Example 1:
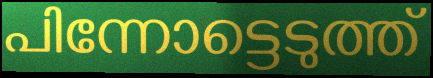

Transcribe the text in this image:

പിന്നോട്ടെടുത്ത്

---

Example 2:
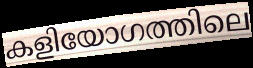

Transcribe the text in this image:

കളിയോഗത്തിലെ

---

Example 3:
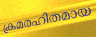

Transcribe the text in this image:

ക്രമരഹിതമായ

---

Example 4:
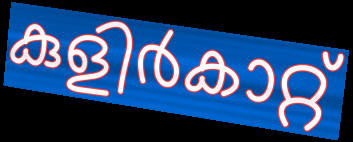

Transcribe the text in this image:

കുളിർകാറ്റ്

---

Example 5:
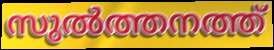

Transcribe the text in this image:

സുൽത്തനത്ത്